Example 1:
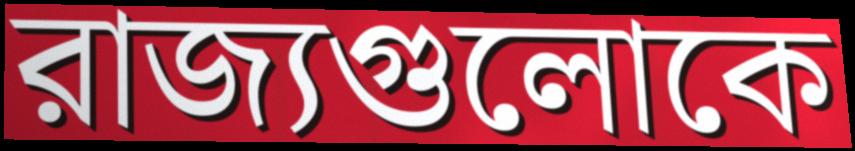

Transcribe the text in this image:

রাজ্যগুলোকে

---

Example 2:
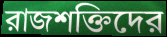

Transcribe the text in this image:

রাজশক্তিদের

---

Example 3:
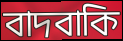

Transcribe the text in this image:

বাদবাকি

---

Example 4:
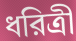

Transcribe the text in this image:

ধরিত্রী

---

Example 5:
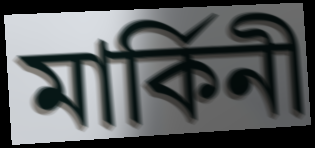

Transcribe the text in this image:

মার্কিনী